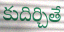
కుదిర్చితే